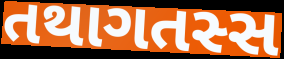
તથાગતસ્સ